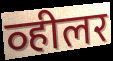
व्हीलर